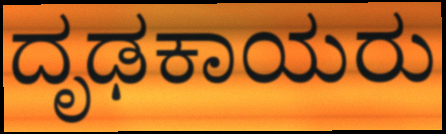
ದೃಢಕಾಯರು